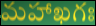
మహాఖగః